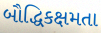
બૌદ્ધિકક્ષમતા